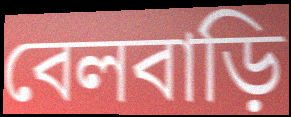
বেলবাড়ি